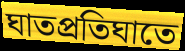
ঘাতপ্রতিঘাতে